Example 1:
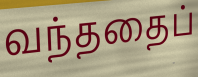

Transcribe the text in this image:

வந்ததைப்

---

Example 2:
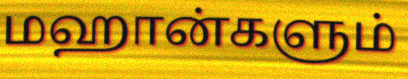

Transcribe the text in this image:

மஹான்களும்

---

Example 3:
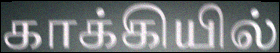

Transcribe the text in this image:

காக்கியில்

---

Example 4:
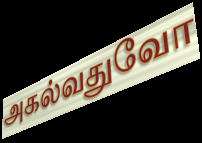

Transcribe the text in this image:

அகல்வதுவோ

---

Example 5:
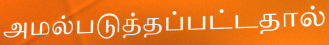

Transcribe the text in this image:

அமல்படுத்தப்பட்டதால்